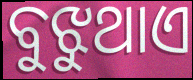
ବୁଝୁଥାଏ